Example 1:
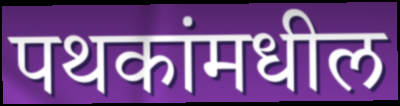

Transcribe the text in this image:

पथकांमधील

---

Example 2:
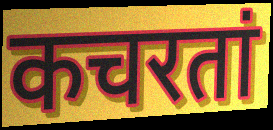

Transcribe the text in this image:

कचरतां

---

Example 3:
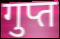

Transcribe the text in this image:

गुप्त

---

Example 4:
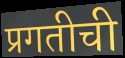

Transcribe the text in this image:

प्रगतीची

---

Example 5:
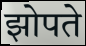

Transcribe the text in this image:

झोपते